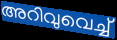
അറിവുവെച്ച്